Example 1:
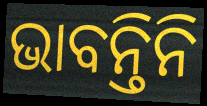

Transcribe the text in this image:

ଭାବନ୍ତିନି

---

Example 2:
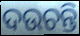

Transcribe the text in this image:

ଦଉଚନ୍ତି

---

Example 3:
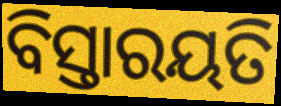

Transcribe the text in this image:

ବିସ୍ତାରୟତି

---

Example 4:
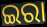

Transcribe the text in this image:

ଇରା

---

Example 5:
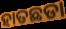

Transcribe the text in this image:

ହାତଛଡା